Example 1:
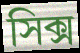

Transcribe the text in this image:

সিক্স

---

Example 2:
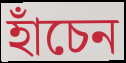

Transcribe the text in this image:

হাঁচেন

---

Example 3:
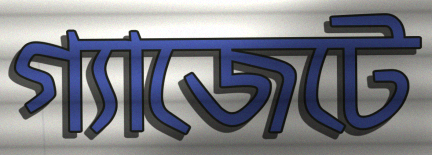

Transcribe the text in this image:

গ্যাজেটে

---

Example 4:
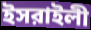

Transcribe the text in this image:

ইসরাইলী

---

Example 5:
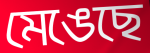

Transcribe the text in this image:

মেঙেছে